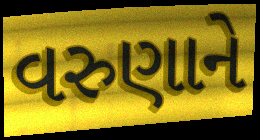
વરુણાને